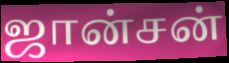
ஜான்சன்